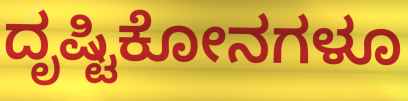
ದೃಷ್ಟಿಕೋನಗಳೂ